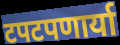
टपटपणार्या